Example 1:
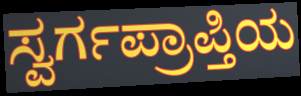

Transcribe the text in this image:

ಸ್ವರ್ಗಪ್ರಾಪ್ತಿಯ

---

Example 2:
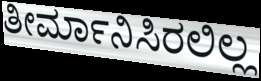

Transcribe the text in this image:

ತೀರ್ಮಾನಿಸಿರಲಿಲ್ಲ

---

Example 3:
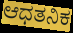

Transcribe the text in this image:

ಆಧತನಿಕ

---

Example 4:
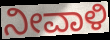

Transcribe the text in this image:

ನೀವಾಳಿ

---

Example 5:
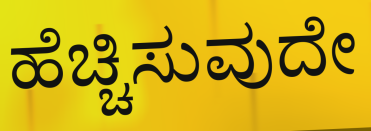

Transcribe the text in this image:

ಹೆಚ್ಚಿಸುವುದೇ